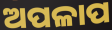
ଅପଳାପ